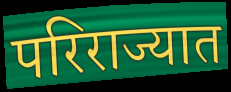
परिराज्यात